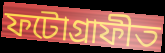
ফটোগ্ৰাফীত